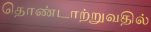
தொண்டாற்றுவதில்